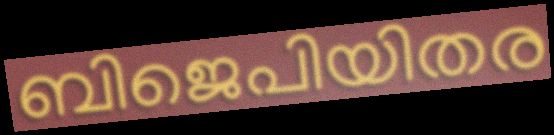
ബിജെപിയിതര